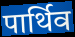
पार्थिव